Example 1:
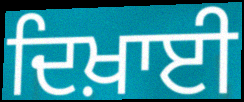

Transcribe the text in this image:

ਦਿਖ਼ਾਈ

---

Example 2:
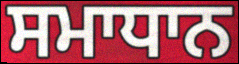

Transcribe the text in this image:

ਸਮਾਧਾਨ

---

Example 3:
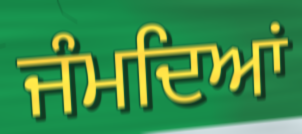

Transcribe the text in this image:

ਜੰਮਦਿਆਂ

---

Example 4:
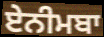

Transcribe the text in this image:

ਏਨੀਮਬਾ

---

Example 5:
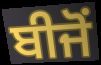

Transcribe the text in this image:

ਬੀਜੋਂ